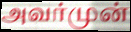
அவர்முன்